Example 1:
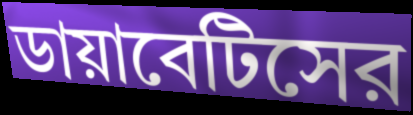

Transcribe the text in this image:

ডায়াবেটিসের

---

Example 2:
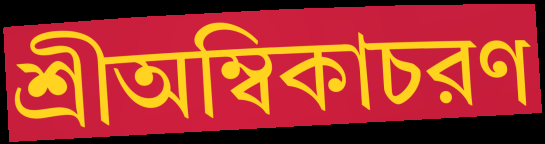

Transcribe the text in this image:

শ্রীঅম্বিকাচরণ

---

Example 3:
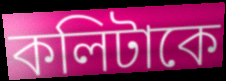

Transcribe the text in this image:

কলিটাকে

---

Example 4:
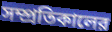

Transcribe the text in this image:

সম্প্রতিকালের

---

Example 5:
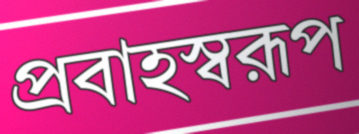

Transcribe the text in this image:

প্রবাহস্বরূপ